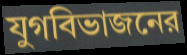
যুগবিভাজনের